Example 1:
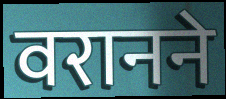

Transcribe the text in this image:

वरानने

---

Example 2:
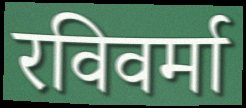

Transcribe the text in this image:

रविवर्मा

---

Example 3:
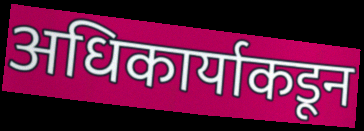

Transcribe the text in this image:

अधिकार्याकडून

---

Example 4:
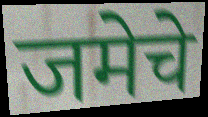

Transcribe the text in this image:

जमेचे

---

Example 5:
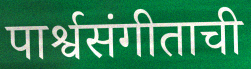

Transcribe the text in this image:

पार्श्वसंगीताची